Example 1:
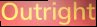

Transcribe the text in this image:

Outright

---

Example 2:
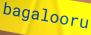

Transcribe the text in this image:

bagalooru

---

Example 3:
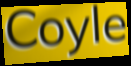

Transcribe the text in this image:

Coyle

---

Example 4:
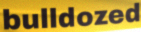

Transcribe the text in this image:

bulldozed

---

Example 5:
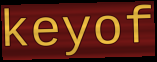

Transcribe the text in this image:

keyof